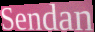
Sendan